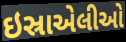
ઇસ્રાએલીઓ